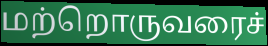
மற்றொருவரைச்